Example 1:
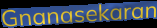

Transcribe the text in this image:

Gnanasekaran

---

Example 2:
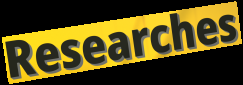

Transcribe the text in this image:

Researches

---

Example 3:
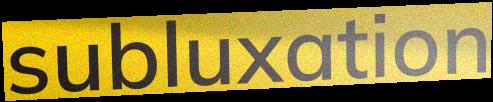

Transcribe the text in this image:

subluxation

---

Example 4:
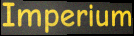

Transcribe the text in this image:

Imperium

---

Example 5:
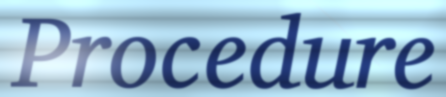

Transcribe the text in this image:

Procedure